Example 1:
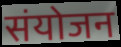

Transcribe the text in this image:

संयोजन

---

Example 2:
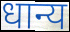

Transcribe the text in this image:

धान्य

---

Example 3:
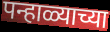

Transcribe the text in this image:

पन्हाळ्याच्या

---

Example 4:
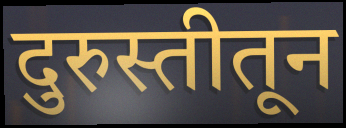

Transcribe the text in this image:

दुरुस्तीतून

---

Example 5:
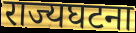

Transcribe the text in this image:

राज्यघटना